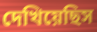
দেখিয়েছিস